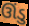
ઊંડુ